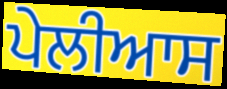
ਪੇਲੀਆਸ